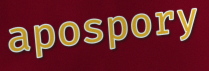
apospory